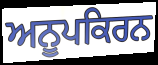
ਅਨੂਪਕਿਰਨ